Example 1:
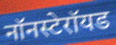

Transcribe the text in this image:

नॉनस्टेरॉयड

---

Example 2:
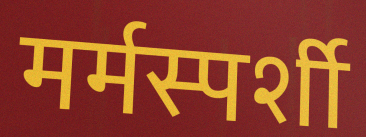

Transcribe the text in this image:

मर्मस्पर्शी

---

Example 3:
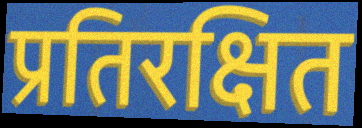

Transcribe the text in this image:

प्रतिरक्षित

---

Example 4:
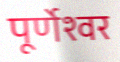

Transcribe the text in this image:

पूर्णेश्वर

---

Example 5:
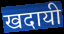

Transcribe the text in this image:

खदायी